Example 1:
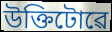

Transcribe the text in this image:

উক্তিটোৱে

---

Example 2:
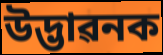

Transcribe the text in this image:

উদ্ভাৱনক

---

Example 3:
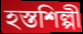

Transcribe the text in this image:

হস্তশিল্পী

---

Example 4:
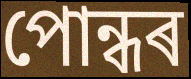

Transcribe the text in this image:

পোন্ধৰ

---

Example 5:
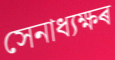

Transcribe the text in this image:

সেনাধ্যক্ষৰ